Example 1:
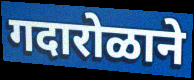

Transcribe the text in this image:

गदारोळाने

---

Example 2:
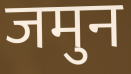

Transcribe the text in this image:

जमुन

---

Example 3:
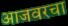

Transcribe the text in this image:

आजवरचा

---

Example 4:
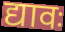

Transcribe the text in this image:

द्यावः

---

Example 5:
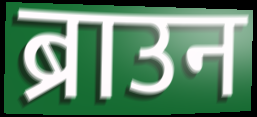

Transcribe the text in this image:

ब्राउन